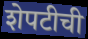
शेपटीची